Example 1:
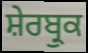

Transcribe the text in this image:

ਸ਼ੇਰਬ੍ਰੁਕ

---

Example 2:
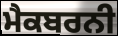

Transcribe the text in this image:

ਮੈਕਬਰਨੀ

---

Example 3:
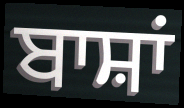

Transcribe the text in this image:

ਬਾਸ਼ਾਂ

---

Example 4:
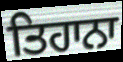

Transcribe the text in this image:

ਤਿਹਾਨਾ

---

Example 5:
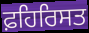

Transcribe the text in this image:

ਫ਼ਹਿਰਿਸਤ